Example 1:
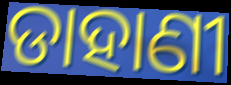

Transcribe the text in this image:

ଡାହାଣୀ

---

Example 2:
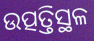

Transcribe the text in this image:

ଉତ୍ପତ୍ତିସ୍ଥଳ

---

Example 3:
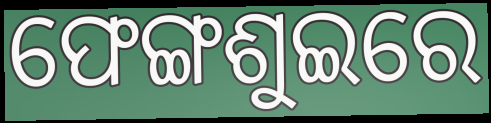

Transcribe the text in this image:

ଫେଙ୍ଗଶୁଇରେ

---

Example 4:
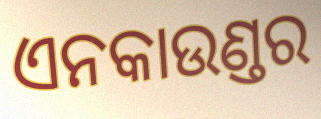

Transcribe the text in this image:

ଏନକାଉଣ୍ଡର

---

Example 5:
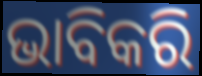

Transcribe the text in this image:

ଭାବିକରି